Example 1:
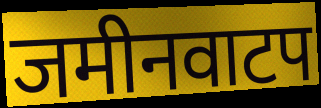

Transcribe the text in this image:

जमीनवाटप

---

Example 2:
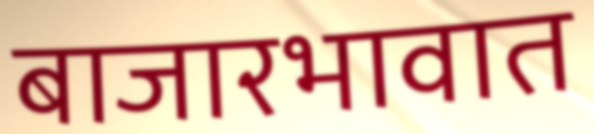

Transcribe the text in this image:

बाजारभावात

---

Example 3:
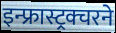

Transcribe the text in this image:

इन्फ्रास्ट्रक्चरने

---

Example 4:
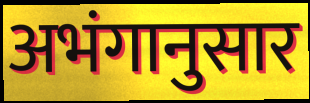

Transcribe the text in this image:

अभंगानुसार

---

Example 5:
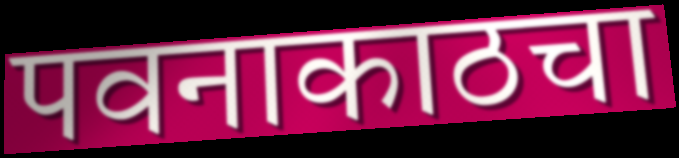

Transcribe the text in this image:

पवनाकाठचा